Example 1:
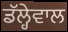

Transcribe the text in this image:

ਡੱਲ੍ਹੇਵਾਲ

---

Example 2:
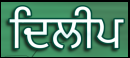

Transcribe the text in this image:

ਦਿਲੀਪ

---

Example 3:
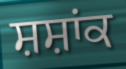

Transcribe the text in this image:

ਸ਼ਸ਼ਾਂਕ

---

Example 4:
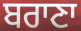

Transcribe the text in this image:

ਬਰਾਣਾ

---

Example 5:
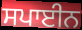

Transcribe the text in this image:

ਸਪਾਈਨ